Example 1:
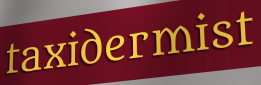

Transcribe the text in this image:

taxidermist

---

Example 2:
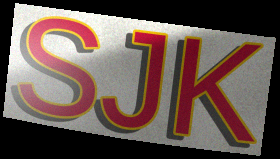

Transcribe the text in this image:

SJK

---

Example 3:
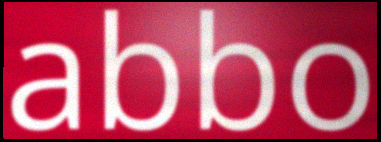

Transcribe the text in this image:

abbo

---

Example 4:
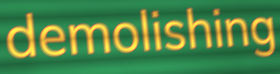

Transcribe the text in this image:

demolishing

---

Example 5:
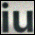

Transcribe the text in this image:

iu